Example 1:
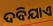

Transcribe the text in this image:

ଦବିଯାଏ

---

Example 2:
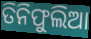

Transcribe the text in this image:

ତିନିଫୁଲିଆ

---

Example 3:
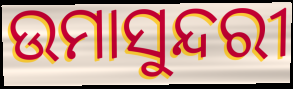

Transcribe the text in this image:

ଉମାସୁନ୍ଦରୀ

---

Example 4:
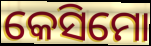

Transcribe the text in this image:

କେସିମୋ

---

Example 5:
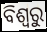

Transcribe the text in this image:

ବିଶ୍ଵରୁ